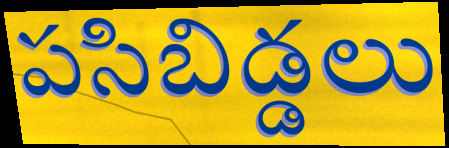
పసిబిడ్డలు